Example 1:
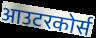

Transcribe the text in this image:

आउटरकोर्स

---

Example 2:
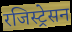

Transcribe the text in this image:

रजिस्ट्रेसन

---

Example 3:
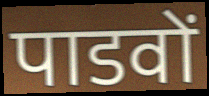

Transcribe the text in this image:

पाडवों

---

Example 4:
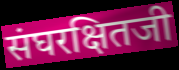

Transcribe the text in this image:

संघरक्षितजी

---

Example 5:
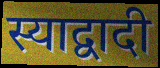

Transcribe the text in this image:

स्याद्वादी